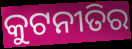
କୁଟନୀତିର